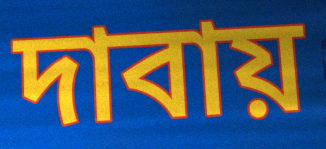
দাবায়